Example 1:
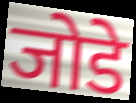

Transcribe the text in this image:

जोडे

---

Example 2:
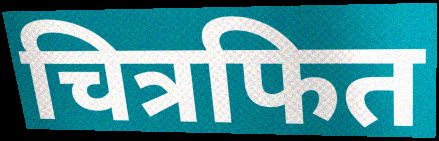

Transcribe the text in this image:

चित्रफित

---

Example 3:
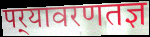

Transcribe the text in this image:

पर्यावरणतज्ञ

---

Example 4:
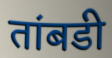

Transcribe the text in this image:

तांबडी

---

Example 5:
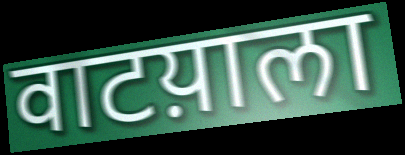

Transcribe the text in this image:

वाटय़ाला